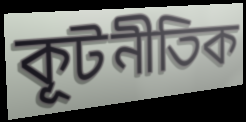
কূটনীতিক